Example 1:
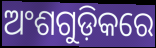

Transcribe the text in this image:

ଅଂଶଗୁଡ଼ିକରେ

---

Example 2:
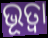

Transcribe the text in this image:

ଭୂତ୍ୱା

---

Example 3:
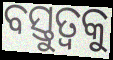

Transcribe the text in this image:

ବସ୍ତୁତ୍ଵକୁ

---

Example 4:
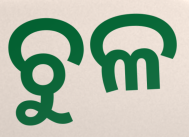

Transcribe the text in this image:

ଚୁଳ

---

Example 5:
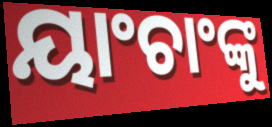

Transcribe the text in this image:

ୟାଂଚାଂଙ୍କୁ